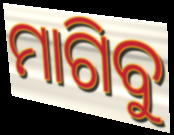
ମାଗିବୁ